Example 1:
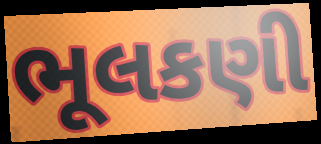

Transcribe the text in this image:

ભૂલકણી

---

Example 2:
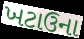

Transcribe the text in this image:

ખટાઉના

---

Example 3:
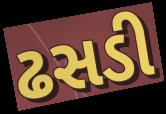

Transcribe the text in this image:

ઢસડી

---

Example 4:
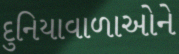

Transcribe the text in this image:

દુનિયાવાળાઓને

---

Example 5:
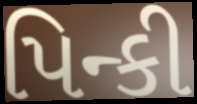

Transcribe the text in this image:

પિન્કી